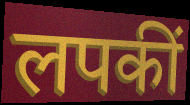
लपकीं